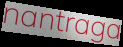
nantraga